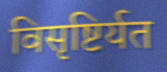
विसृष्टिर्यत